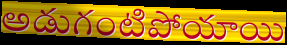
అడుగంటిపోయాయి